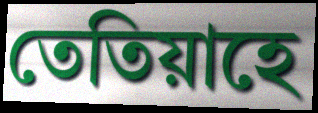
তেতিয়াহে